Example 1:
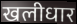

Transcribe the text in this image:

खलीधार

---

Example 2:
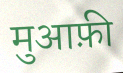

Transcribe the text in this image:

मुआफ़ी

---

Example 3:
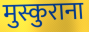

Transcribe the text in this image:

मुस्कुराना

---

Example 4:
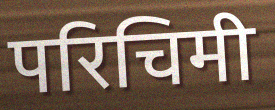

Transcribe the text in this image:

परिचिमी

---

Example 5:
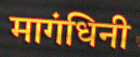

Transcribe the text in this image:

मागंधिनी